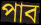
পাব